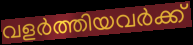
വളർത്തിയവർക്ക്